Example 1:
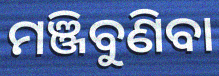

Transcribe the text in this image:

ମଞ୍ଜିବୁଣିବା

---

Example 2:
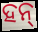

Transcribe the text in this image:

ହନ୍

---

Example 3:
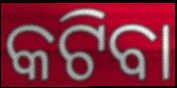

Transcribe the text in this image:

କଟିବା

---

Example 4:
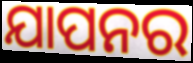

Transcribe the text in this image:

ଯାପନର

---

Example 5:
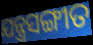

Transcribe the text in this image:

ଯନ୍ତ୍ରସଙ୍ଗୀତ